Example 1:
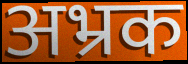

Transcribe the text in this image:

अभ्रक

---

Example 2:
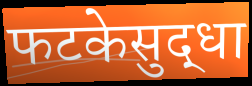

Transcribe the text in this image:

फटकेसुद्धा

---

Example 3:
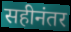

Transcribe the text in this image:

सहीनंतर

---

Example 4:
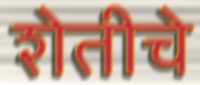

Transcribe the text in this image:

शेतीचे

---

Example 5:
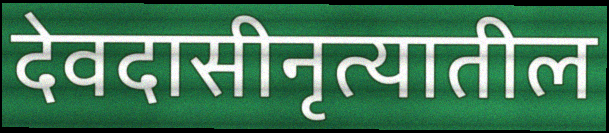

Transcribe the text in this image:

देवदासीनृत्यातील